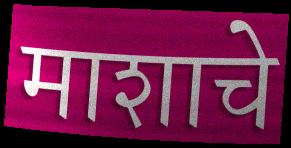
माशाचे